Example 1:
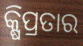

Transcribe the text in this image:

କ୍ଷିପ୍ରତାର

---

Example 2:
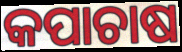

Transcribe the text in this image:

କପାଚାଷ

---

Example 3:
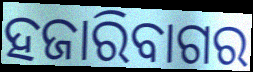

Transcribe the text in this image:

ହଜାରିବାଗର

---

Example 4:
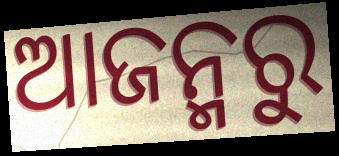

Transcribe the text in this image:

ଆଜନ୍ମରୁ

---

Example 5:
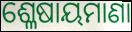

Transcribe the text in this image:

ଶ୍ଳେଷାୟମାଣା